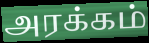
அரக்கம்